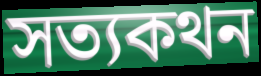
সত্যকথন